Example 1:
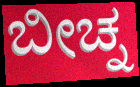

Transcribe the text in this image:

ಬೀಚ್ನ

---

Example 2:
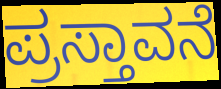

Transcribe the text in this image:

ಪ್ರಸ್ತಾವನೆ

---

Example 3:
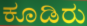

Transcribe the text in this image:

ಕೂಡಿರು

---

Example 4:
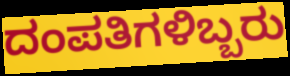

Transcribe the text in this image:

ದಂಪತಿಗಳಿಬ್ಬರು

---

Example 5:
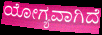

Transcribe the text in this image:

ಯೋಗ್ಯವಾಗಿದೆ